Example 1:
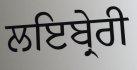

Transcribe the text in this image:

ਲਇਬ੍ਰੇਰੀ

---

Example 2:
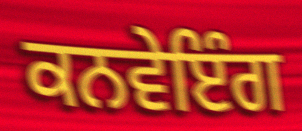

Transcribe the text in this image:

ਕਨਵੇਇੰਗ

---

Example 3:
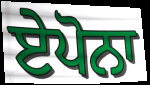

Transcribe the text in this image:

ਏਪੋਨਾ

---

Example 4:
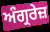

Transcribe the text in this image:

ਅੰਗ੍ਰਰੇਜ਼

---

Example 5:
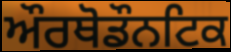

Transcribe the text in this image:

ਔਰਥੋਡੌਨਟਿਕ